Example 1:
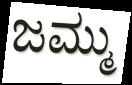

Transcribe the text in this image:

ಜಮ್ಮು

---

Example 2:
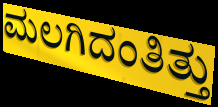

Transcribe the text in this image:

ಮಲಗಿದಂತಿತ್ತು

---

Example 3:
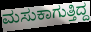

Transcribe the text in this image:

ಮಸುಕಾಗುತ್ತಿದ್ದ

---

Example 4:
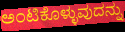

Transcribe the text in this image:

ಅಂಟಿಕೊಳ್ಳುವುದನ್ನು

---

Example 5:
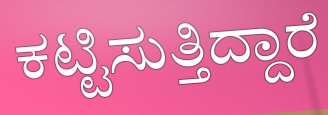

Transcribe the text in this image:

ಕಟ್ಟಿಸುತ್ತಿದ್ದಾರೆ